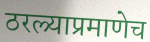
ठरल्याप्रमाणेच